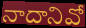
నాదానివో